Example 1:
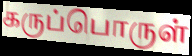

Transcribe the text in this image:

கருப்பொருள்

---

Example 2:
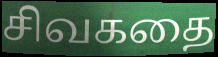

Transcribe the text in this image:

சிவகதை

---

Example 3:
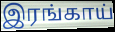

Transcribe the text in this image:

இரங்காய்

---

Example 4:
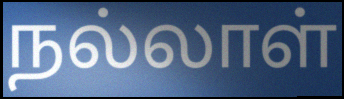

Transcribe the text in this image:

நல்லாள்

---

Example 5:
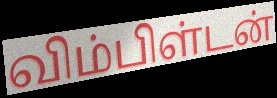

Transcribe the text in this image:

விம்பிள்டன்